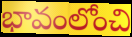
భావంలోంచి